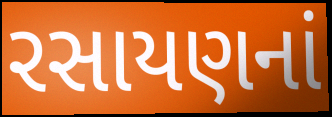
રસાયણનાં